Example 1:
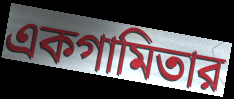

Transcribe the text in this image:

একগামিতার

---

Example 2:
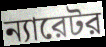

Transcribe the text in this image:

ন্যারেটর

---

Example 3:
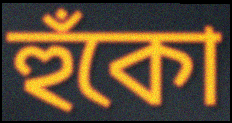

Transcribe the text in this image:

হুঁকো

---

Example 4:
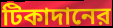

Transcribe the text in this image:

টিকাদানের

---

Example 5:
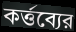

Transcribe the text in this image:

কর্ত্তব্যের